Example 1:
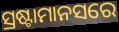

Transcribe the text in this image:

ସ୍ରଷ୍ଟାମାନସରେ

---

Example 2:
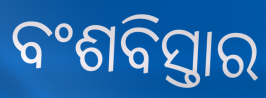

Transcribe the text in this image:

ବଂଶବିସ୍ତାର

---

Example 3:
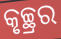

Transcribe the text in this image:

କୃଚ୍ଛ୍ରର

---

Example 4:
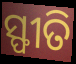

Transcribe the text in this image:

ସ୍ଫୀତି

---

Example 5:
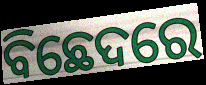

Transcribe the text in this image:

ବିଛେଦରେ